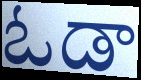
ఓడా